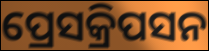
ପ୍ରେସକ୍ରିପସନ